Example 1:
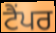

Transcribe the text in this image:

ਟੈਂਪਰ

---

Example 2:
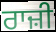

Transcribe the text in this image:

ਰਾਜ਼ੀ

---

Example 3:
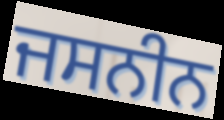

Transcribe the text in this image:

ਜਸਨੀਨ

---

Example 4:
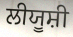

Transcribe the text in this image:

ਲੀਯੂਸ਼ੀ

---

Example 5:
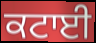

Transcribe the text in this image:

ਕਟਾਈ